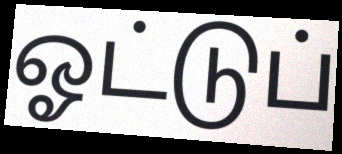
ஓட்டுப்